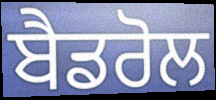
ਬੈਡਰੋਲ